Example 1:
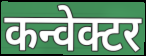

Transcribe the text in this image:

कन्वेक्टर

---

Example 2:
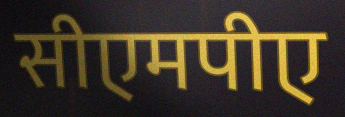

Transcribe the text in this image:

सीएमपीए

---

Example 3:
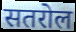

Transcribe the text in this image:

सतरोल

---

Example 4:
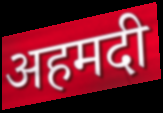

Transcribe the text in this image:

अहमदी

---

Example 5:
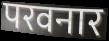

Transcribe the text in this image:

परवनार